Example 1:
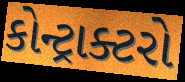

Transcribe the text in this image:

કોન્ટ્રાક્ટરો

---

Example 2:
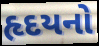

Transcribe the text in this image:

હૃદયનો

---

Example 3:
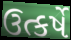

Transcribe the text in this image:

ઉત્કર્ષે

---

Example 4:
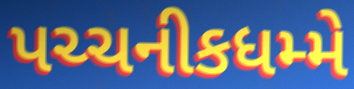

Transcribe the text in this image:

પચ્ચનીકધમ્મે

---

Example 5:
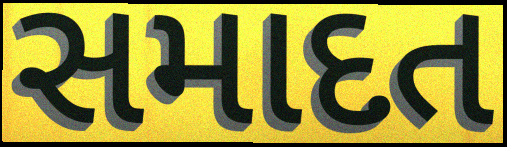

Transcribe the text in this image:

સમાદત